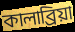
কালাব্রিয়া